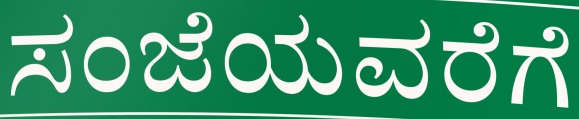
ಸಂಜೆಯವರೆಗೆ